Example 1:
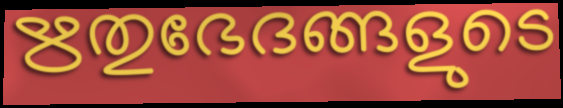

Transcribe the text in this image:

ഋതുഭേദങ്ങളുടെ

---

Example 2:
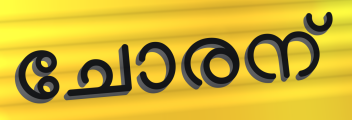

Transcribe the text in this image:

ചോരന്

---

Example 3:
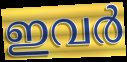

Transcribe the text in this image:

ഇവർ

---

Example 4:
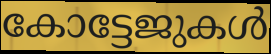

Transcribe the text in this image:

കോട്ടേജുകൾ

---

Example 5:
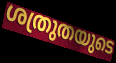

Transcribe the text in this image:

ശത്രുതയുടെ